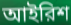
আইরিশ